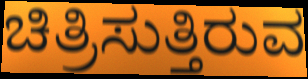
ಚಿತ್ರಿಸುತ್ತಿರುವ